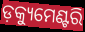
ଡ଼କ୍ୟୁମେଣ୍ଟରି